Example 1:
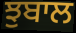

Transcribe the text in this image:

ਝੁਬਾਲ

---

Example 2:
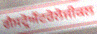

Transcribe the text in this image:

ਗੈਸਟ੍ਰੋਐਂਟਰੋਲੋਜੀਕਲ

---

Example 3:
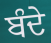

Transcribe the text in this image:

ਬੰਦੇ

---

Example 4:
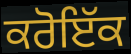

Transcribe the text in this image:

ਕਰੋਇੱਕ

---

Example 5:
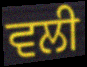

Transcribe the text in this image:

ਵਲੀ